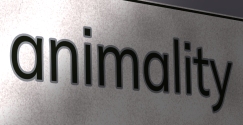
animality